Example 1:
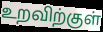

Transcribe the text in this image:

உறவிற்குள்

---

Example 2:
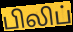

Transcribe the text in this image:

பிலிப்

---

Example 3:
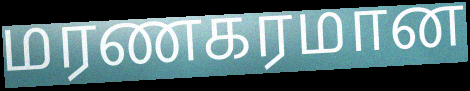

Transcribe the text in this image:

மரணகரமான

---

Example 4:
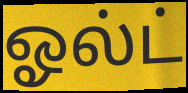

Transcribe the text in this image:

ஓல்ட்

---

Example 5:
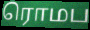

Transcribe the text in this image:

ரொமப